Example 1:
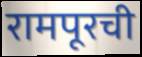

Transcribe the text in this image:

रामपूरची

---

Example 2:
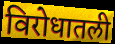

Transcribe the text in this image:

विरोधातली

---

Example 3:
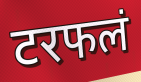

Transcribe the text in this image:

टरफलं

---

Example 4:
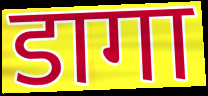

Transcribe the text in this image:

डागा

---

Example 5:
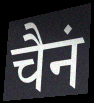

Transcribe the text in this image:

चैनं